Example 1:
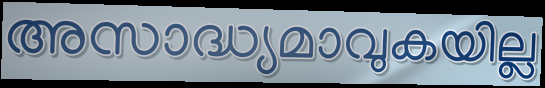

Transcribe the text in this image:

അസാദ്ധ്യമാവുകയില്ല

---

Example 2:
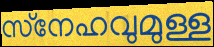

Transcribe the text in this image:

സ്‌നേഹവുമുള്ള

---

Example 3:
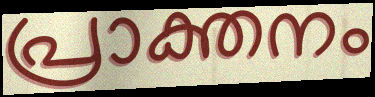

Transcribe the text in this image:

പ്രാക്തനം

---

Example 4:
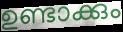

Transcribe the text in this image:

ഉണ്ടാക്കും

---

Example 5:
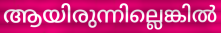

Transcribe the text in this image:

ആയിരുന്നില്ലെങ്കിൽ